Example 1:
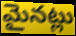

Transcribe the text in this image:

మైనట్లు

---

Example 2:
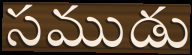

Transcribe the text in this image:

సముడు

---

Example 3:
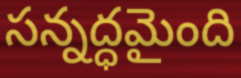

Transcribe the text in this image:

సన్నద్ధమైంది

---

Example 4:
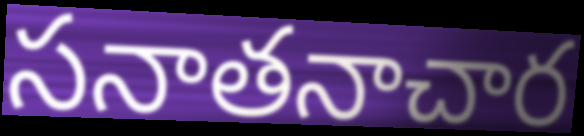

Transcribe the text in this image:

సనాతనాచార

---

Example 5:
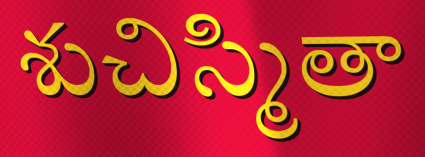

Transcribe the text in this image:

శుచిస్మితా